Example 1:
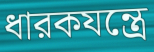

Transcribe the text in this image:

ধারকযন্ত্রে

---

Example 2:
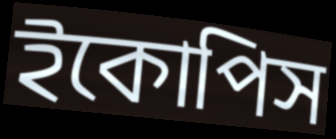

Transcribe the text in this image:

ইকোপিস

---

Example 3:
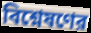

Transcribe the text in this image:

বিশ্নেষণের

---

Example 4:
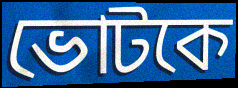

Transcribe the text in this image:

ভোটকে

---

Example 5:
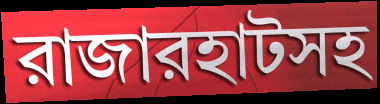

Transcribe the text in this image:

রাজারহাটসহ